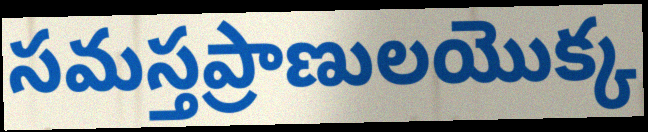
సమస్తప్రాణులయొక్క